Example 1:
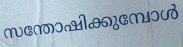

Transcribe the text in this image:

സന്തോഷിക്കുമ്പോൾ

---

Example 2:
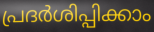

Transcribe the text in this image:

പ്രദർശിപ്പിക്കാം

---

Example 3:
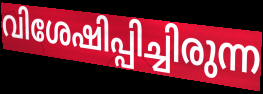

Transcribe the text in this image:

വിശേഷിപ്പിച്ചിരുന്ന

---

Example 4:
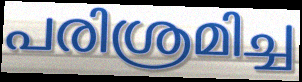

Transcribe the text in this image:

പരിശ്രമിച്ച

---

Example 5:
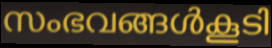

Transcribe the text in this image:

സംഭവങ്ങൾകൂടി